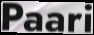
Paari